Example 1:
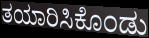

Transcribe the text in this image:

ತಯಾರಿಸಿಕೊಂಡು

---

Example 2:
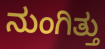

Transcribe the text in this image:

ನುಂಗಿತ್ತು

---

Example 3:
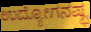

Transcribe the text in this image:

ಉದ್ಯೋಗನಷ್ಟ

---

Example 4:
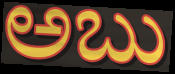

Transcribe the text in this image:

ಅಬು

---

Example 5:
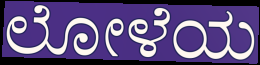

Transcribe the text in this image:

ಲೋಳೆಯ